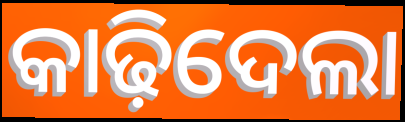
କାଢ଼ିଦେଲା